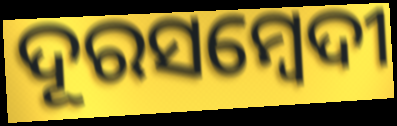
ଦୂରସମ୍ବେଦୀ